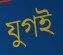
যুগই